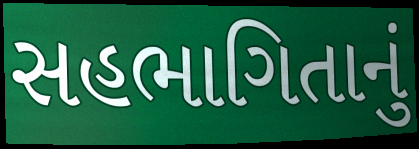
સહભાગિતાનું